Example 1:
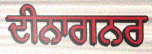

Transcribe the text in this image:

ਦੀਨਾਗਨਰ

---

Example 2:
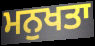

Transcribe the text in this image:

ਮਨੁਖਤਾ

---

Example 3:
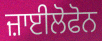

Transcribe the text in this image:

ਜ਼ਾਈਲੋਫੋਨ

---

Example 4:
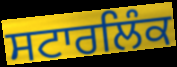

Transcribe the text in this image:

ਸਟਾਰਲਿੰਕ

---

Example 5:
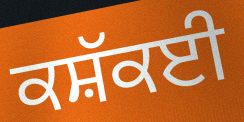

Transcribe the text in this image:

ਕਸ਼ੱਕਈ